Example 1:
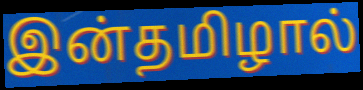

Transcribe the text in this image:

இன்தமிழால்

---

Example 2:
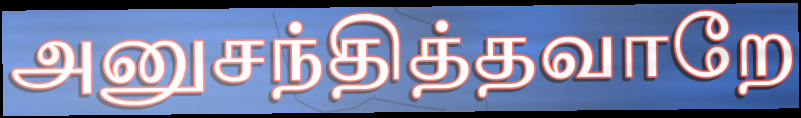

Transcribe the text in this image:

அனுசந்தித்தவாறே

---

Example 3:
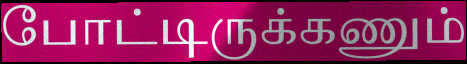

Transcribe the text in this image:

போட்டிருக்கணும்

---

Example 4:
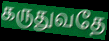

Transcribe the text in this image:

கருதுவதே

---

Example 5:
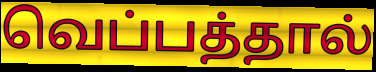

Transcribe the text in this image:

வெப்பத்தால்